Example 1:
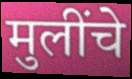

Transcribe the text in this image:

मुलींचे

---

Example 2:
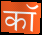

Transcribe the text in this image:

कॉ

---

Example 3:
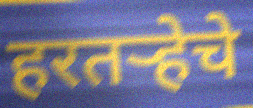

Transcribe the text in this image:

हरतऱ्हेचे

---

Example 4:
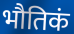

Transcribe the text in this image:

भौतिकं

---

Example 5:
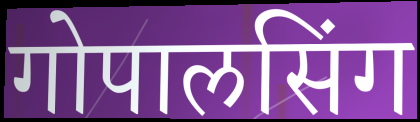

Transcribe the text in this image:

गोपालसिंग